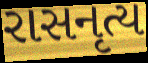
રાસનૃત્ય